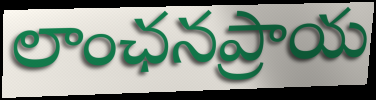
లాంఛనప్రాయ